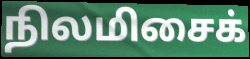
நிலமிசைக்